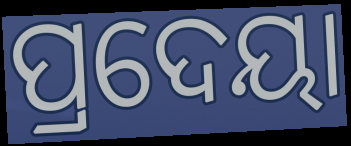
ପ୍ରଦେୟା